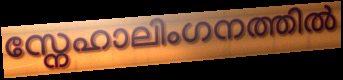
സ്നേഹാലിംഗനത്തിൽ